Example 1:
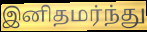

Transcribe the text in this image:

இனிதமர்ந்து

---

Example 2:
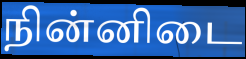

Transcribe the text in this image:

நின்னிடை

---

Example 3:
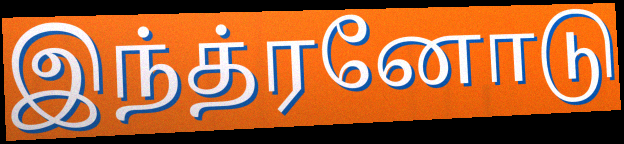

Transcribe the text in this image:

இந்த்ரனோடு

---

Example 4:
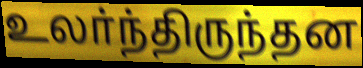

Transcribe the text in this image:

உலர்ந்திருந்தன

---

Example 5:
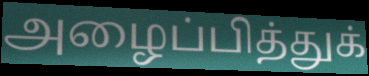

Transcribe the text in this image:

அழைப்பித்துக்